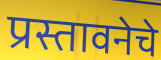
प्रस्तावनेचे